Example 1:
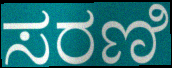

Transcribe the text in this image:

ಸರಣಿ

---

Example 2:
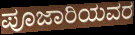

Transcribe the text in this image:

ಪೂಜಾರಿಯವರ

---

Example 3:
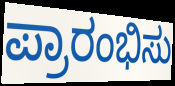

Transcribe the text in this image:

ಪ್ರಾರಂಭಿಸು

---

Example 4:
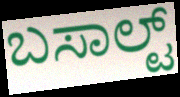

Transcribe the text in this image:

ಬಸಾಲ್ಟ್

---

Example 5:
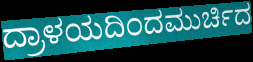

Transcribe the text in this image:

ದ್ರಾಳಯದಿಂದಮುರ್ಚಿದ